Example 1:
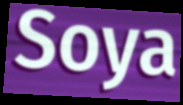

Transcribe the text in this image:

Soya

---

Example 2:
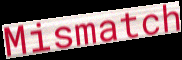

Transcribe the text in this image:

Mismatch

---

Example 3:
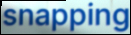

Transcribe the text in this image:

snapping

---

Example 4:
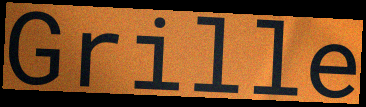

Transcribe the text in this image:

Grille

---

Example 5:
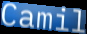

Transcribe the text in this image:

Camil